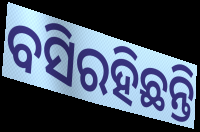
ବସିରହିଛନ୍ତି